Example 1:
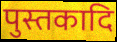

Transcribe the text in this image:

पुस्तकादि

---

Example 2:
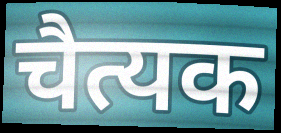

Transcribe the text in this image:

चैत्यक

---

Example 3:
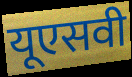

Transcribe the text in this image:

यूएसवी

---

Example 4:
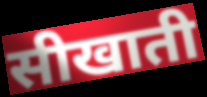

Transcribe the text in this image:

सीखाती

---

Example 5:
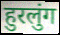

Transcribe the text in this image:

हुरलुंग